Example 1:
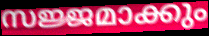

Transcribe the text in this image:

സജ്ജമാക്കും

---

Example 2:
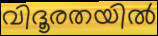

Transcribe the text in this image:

വിദൂരതയിൽ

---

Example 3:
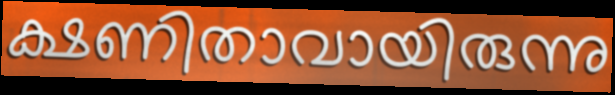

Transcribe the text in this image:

ക്ഷണിതാവായിരുന്നു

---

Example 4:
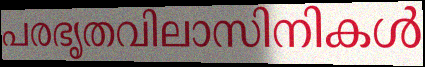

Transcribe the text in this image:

പരഭൃതവിലാസിനികൾ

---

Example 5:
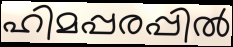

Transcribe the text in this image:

ഹിമപ്പരപ്പിൽ